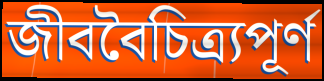
জীববৈচিত্র্যপূর্ণ